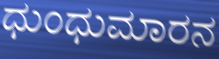
ಧುಂಧುಮಾರನ